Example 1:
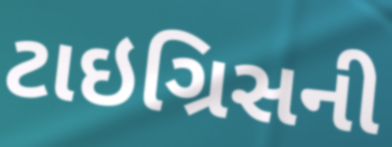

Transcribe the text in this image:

ટાઇગ્રિસની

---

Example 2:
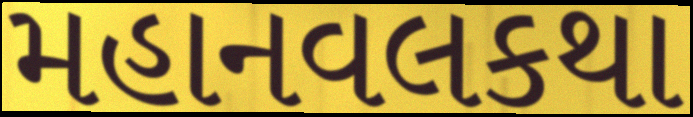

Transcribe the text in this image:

મહાનવલકથા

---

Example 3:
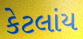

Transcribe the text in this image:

કેટલાંય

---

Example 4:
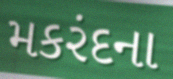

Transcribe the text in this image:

મકરંદના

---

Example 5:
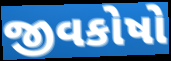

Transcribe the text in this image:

જીવકોષો